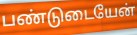
பண்டுடையேன்